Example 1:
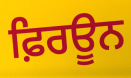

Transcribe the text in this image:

ਫ਼ਿਰਊਨ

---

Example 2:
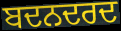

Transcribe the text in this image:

ਬਦਨਦਰਦ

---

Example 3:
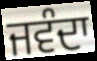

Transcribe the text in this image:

ਜਵੰਦਾ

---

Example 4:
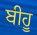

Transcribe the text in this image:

ਬੀਹੂ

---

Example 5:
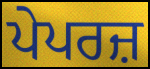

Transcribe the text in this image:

ਪੇਪਰਜ਼